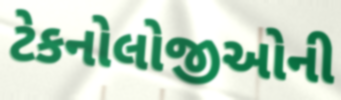
ટેકનોલોજીઓની